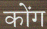
कोंग